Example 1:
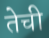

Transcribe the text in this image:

तेची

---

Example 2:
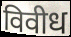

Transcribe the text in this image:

विवीध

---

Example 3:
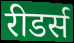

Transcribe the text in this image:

रीडर्स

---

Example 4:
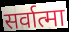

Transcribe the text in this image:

सर्वात्मा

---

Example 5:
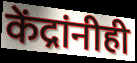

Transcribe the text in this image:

केंद्रांनीही